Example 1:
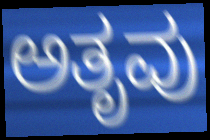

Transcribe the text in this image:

ಅತೃವು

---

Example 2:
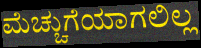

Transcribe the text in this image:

ಮೆಚ್ಚುಗೆಯಾಗಲಿಲ್ಲ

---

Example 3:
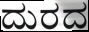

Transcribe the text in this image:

ದುರದ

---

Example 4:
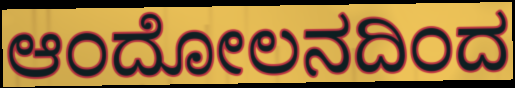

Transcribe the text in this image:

ಆಂದೋಲನದಿಂದ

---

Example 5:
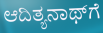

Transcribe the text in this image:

ಆದಿತ್ಯನಾಥ್‌ಗೆ